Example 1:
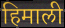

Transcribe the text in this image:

हिमाली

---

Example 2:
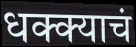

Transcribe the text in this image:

धक्क्याचं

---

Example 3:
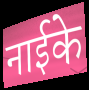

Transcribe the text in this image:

नाईके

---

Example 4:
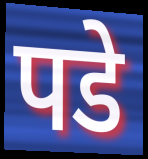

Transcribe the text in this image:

पडे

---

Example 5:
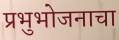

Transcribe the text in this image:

प्रभुभोजनाचा